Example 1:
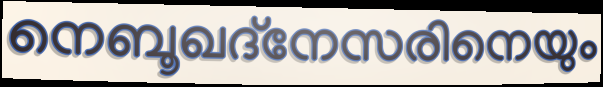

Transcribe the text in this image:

നെബൂഖദ്നേസരിനെയും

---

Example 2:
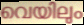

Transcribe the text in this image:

വെയിലും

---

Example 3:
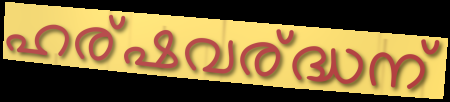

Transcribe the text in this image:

ഹര്ഷവര്ദ്ധന്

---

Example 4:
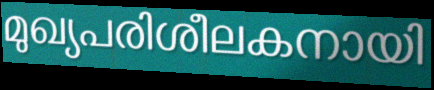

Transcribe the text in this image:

മുഖ്യപരിശീലകനായി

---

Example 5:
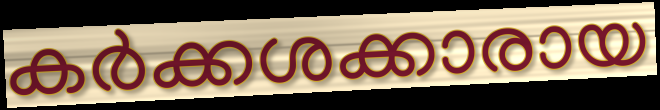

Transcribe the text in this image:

കർക്കശക്കാരായ